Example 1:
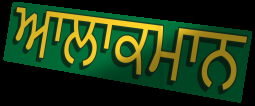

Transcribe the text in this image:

ਆਲਾਕਮਾਨ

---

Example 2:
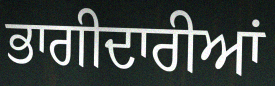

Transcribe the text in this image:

ਭਾਗੀਦਾਰੀਆਂ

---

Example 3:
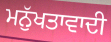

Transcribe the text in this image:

ਮਨੁੱਖਤਾਵਾਦੀ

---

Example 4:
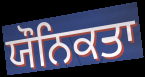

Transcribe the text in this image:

ਯੌਨਿਕਤਾ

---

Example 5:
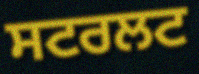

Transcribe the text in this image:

ਸਟਰਲਟ